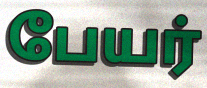
பேயர்